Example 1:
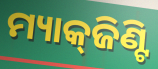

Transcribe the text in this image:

ମ୍ୟାକ୍‌ଜିଣ୍ଟି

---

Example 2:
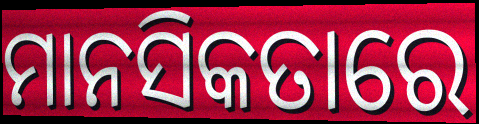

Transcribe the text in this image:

ମାନସିକତାରେ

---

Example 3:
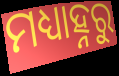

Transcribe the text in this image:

ମଧ୍ୟାହ୍ନରୁ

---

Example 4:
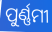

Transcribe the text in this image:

ପୁର୍ଣ୍ଣମୀ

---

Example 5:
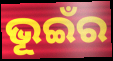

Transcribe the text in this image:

ଭୂଇଁର